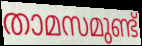
താമസമുണ്ട്